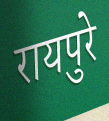
रायपुरे